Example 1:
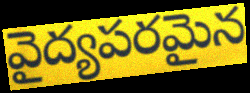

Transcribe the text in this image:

వైద్యపరమైన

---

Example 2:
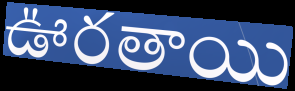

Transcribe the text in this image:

ఊరతాయి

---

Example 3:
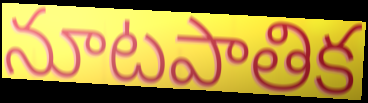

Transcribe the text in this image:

నూటపాతిక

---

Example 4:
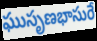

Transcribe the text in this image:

ఘుసృణభాసురే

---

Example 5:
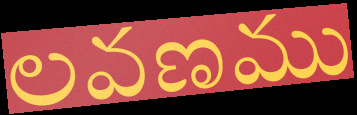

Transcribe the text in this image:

లవణము